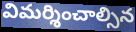
విమర్శించాల్సిన